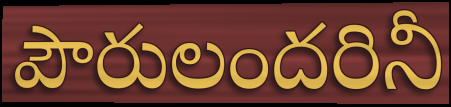
పౌరులందరినీ